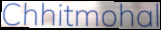
Chhitmohal